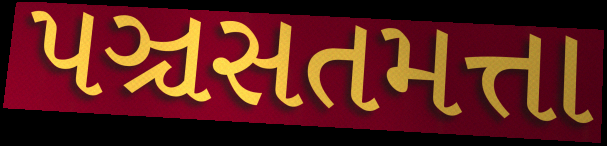
પઞ્ચસતમત્તા